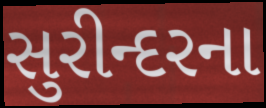
સુરીન્દરના